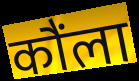
कौंला